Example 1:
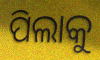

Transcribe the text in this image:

ପିଲାକୁ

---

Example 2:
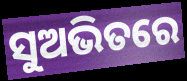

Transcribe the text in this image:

ସୁଅଭିତରେ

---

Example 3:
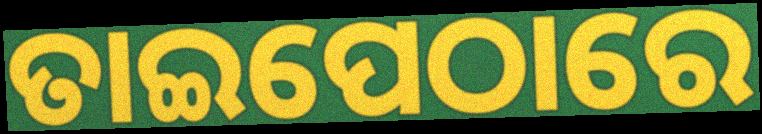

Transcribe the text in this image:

ତାଇପେଠାରେ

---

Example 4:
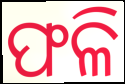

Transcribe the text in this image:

ଫଳି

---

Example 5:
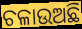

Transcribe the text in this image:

ଚଳାଉଅଛି